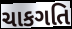
ચાકગતિ